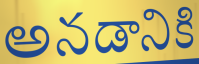
అనడానికి